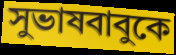
সুভাষবাবুকে